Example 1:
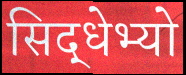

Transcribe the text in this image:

सिद्धेभ्यो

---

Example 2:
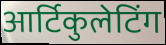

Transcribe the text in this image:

आर्टिकुलेटिंग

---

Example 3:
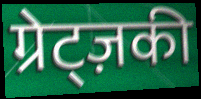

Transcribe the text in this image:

ग्रेट्ज़की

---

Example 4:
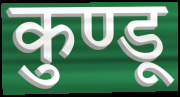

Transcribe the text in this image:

कुण्डू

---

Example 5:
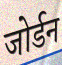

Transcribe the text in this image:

जोर्डन